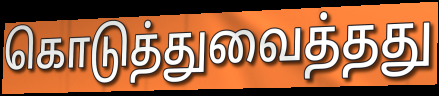
கொடுத்துவைத்தது